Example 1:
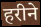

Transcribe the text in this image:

हरीने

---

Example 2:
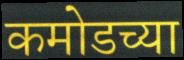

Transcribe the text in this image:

कमोडच्या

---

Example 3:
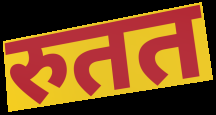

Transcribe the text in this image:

रुतत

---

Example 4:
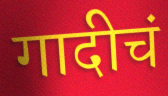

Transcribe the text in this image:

गादीचं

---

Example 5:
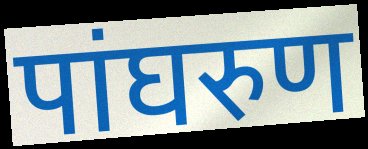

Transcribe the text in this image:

पांघरुण